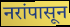
नरांपासून